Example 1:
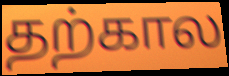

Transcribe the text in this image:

தற்கால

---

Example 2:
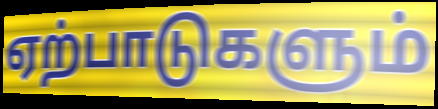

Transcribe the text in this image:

ஏற்பாடுகளும்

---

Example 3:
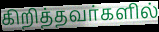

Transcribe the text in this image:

கிறித்தவர்களில்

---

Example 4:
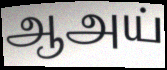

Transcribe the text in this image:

ஆஅய்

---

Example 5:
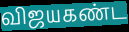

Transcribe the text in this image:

விஜயகண்ட